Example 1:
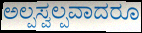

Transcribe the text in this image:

ಅಲ್ಪಸ್ವಲ್ಪವಾದರೂ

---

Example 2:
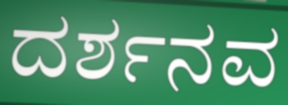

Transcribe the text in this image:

ದರ್ಶನವ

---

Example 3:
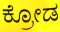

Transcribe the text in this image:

ಕ್ರೋಡ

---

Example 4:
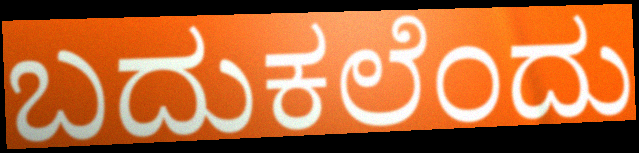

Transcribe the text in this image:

ಬದುಕಲೆಂದು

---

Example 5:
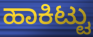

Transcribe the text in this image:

ಹಾಕಿಟ್ಟು